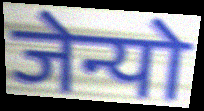
जेन्यो